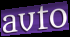
auto